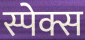
स्पेक्स